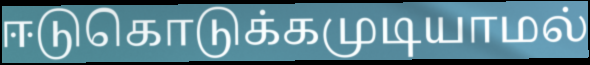
ஈடுகொடுக்கமுடியாமல்